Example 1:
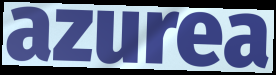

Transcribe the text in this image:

azurea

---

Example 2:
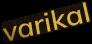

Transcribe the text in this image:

varikal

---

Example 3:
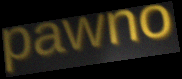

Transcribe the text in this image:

pawno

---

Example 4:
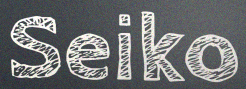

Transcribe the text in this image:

Seiko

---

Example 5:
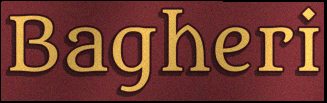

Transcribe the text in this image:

Bagheri